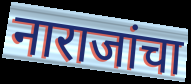
नाराजांचा